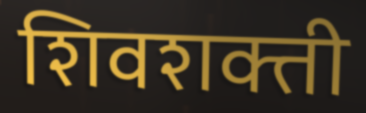
शिवशक्ती